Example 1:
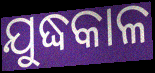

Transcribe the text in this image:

ଯୁଦ୍ଧକାଳ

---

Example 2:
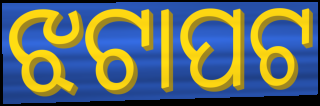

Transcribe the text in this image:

ଝଟାପଟ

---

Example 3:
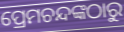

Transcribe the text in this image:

ପ୍ରେମଚନ୍ଦଙ୍କଠାରୁ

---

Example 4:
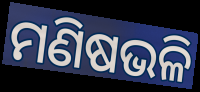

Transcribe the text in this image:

ମଣିଷଭଳି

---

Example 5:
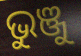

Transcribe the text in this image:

ଭୁଞ୍ଜୁ